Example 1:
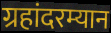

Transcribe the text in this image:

ग्रहांदरम्यान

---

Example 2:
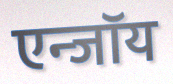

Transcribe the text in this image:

एन्जॉय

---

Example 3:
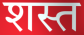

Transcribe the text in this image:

शस्त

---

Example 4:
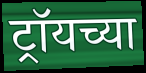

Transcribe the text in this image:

ट्रॉयच्या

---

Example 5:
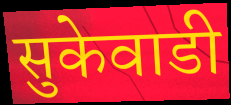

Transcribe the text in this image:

सुकेवाडी